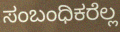
ಸಂಬಂಧಿಕರೆಲ್ಲ